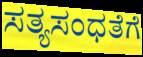
ಸತ್ಯಸಂಧತೆಗೆ